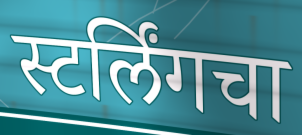
स्टर्लिंगचा